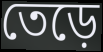
তেড়ে